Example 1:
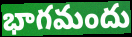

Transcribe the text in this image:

భాగమందు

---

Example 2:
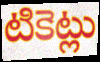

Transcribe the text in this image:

టికెట్లు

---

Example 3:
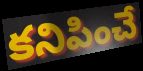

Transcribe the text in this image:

కనిపించే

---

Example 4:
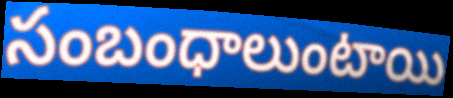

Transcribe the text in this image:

సంబంధాలుంటాయి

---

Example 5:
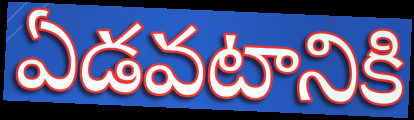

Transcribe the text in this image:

ఏడవటానికి